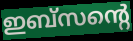
ഇബ്സന്റെ